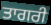
ਤਾਗਰੀ